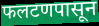
फलटणपासून